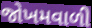
જોખમવાળી